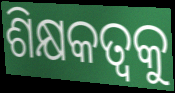
ଶିକ୍ଷକତ୍ଵକୁ